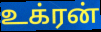
உக்ரன்